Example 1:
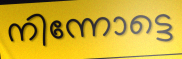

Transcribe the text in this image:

നിന്നോട്ടെ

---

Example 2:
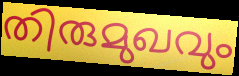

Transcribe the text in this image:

തിരുമുഖവും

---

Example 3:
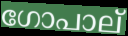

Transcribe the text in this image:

ഗോപാല്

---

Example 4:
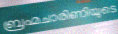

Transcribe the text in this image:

ബ്രഹ്മചാരിണിയുടെ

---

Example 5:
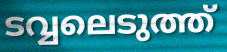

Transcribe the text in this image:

ടവ്വലെടുത്ത്